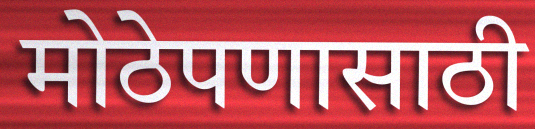
मोठेपणासाठी